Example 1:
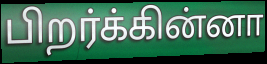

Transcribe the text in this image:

பிறர்க்கின்னா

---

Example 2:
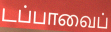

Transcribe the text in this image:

டப்பாவைப்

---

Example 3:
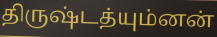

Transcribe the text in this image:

திருஷ்டத்யும்னன்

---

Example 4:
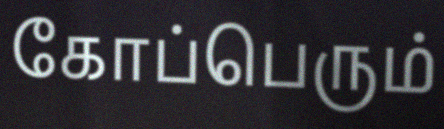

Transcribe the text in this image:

கோப்பெரும்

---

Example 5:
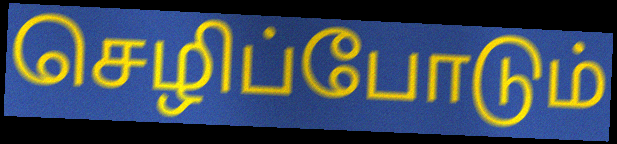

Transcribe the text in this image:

செழிப்போடும்